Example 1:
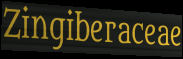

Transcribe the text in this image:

Zingiberaceae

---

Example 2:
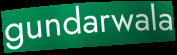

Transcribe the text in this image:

gundarwala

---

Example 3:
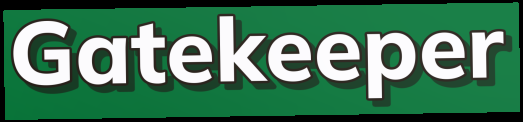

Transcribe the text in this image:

Gatekeeper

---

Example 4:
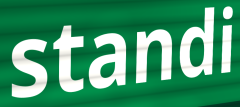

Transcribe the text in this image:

standi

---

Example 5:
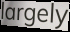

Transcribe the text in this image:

largely